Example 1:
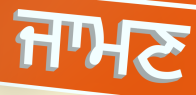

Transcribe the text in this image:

ਜਾਮਣ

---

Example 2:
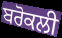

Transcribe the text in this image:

ਬਰੋਕਲੀ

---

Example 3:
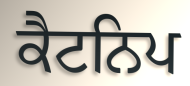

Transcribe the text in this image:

ਕੈਟਨਿਪ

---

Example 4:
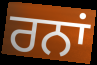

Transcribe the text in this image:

ਰਨਾਂ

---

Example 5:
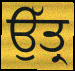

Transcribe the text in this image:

ਉੱਤ੍ਰ